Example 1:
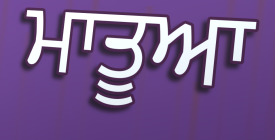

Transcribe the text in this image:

ਮਾਤੂਆ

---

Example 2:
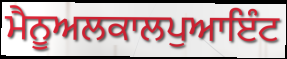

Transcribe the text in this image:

ਮੈਨੂਅਲਕਾਲਪੁਆਇੰਟ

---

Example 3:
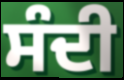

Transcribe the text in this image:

ਸੰਦੀ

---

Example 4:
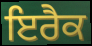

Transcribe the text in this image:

ਇਰੈਕ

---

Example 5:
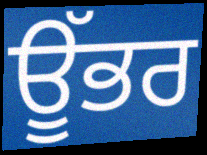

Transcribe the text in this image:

ਊੱਭਰ